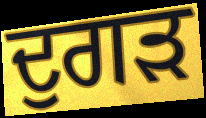
ਦੁਗੜ